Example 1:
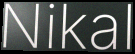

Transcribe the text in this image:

Nikal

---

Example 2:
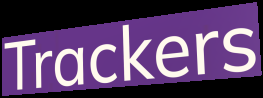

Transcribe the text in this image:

Trackers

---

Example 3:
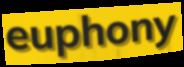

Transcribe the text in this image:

euphony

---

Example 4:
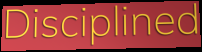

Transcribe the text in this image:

Disciplined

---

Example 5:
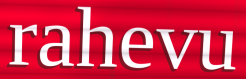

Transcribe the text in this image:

rahevu